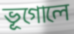
ভূগোলে